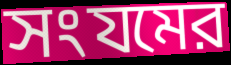
সংযমের